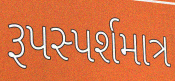
રૂપસ્પર્શમાત્ર